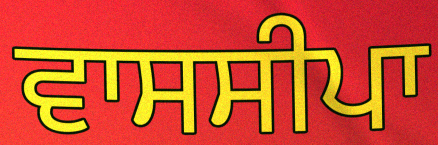
ਵਾਸਸੀਪਾ